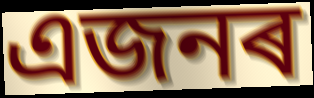
এজনৰ